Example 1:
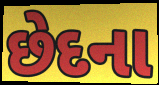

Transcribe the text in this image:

છેદના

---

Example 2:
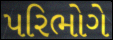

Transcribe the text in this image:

પરિભોગે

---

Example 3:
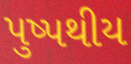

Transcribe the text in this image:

પુષ્પથીય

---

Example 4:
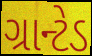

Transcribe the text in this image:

ગ્રાન્ટેડ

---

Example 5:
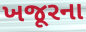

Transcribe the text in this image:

ખજૂરના